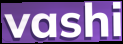
vashi